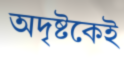
অদৃষ্টকেই